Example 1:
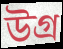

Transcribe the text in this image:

উগ্র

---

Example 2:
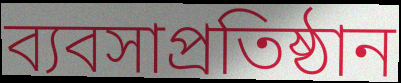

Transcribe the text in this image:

ব্যবসাপ্রতিষ্ঠান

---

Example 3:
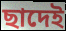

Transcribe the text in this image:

ছাদেই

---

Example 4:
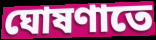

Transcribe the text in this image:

ঘোষণাতে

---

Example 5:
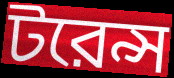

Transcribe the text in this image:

টরেন্স